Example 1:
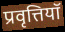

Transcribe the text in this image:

प्रवृत्तियॉ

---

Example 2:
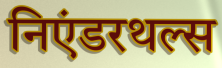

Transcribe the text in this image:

निएंडरथल्स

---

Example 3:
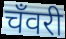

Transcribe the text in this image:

चँवरी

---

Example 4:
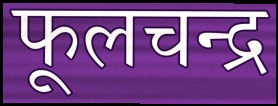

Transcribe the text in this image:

फूलचन्द्र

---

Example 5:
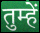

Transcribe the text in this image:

तुम्हें